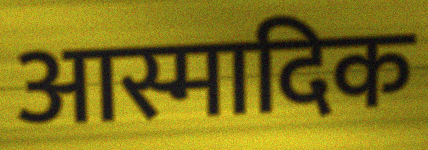
आस्मादिक